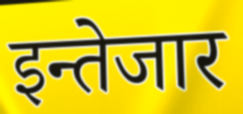
इन्तेजार